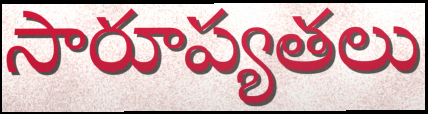
సారూప్యతలు